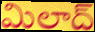
మిలాద్